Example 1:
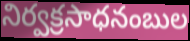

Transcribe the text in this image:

నిర్వక్రసాధనంబుల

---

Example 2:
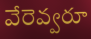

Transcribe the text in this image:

వేరెవ్వరూ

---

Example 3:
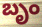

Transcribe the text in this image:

బృం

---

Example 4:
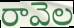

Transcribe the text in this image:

రావెల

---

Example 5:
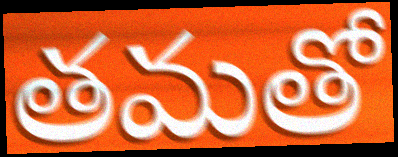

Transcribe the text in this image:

తమతో